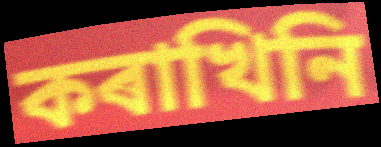
কৰাখিনি